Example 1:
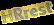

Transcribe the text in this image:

HRrest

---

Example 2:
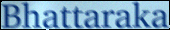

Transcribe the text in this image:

Bhattaraka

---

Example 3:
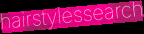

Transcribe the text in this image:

hairstylessearch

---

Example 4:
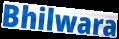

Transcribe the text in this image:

Bhilwara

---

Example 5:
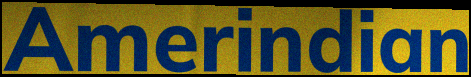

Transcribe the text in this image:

Amerindian